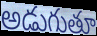
అడుగుతూ